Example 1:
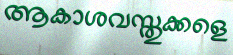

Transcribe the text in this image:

ആകാശവസ്തുക്കളെ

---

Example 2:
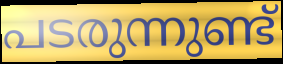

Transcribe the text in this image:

പടരുന്നുണ്ട്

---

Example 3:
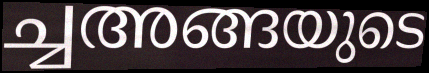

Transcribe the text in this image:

ച്ചഅങ്ങയുടെ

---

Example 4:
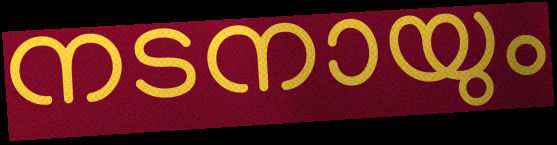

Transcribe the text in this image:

നടനായും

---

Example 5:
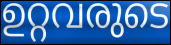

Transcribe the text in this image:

ഉറ്റവരുടെ